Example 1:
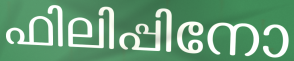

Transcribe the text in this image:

ഫിലിപ്പിനോ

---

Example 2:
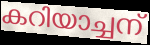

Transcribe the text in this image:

കറിയാച്ചന്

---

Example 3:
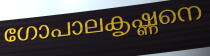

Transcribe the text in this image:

ഗോപാലകൃഷ്ണനെ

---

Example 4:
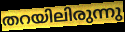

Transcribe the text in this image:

തറയിലിരുന്നു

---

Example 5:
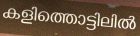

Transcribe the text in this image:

കളിത്തൊട്ടിലിൽ